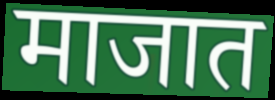
माजात